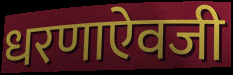
धरणाऐवजी